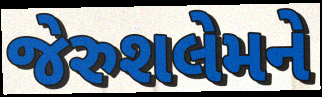
જેરુશલેમને